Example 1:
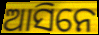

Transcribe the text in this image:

ଆସିନେ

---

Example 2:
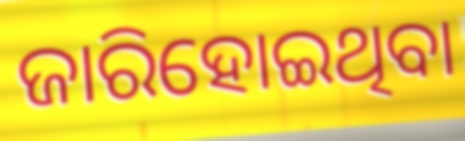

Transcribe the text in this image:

ଜାରିହୋଇଥିବା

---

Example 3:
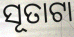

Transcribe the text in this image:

ସୂତାଟା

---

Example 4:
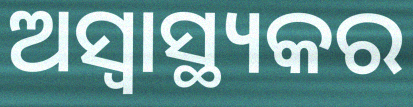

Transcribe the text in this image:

ଅସ୍ୱାସ୍ଥ୍ୟକର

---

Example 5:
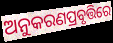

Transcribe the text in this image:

ଅନୁକରଣପ୍ରବୃତ୍ତିରେ